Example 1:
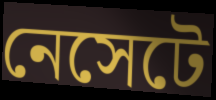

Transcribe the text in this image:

নেসেটে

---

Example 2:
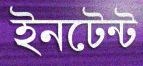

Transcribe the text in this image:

ইনটেন্ট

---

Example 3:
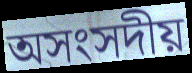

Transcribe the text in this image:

অসংসদীয়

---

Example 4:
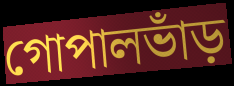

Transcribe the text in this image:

গোপালভাঁড়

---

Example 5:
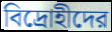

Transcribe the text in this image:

বিদ্রোহীদের